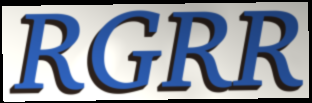
RGRR